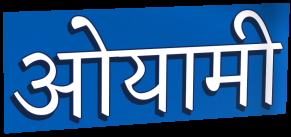
ओयामी